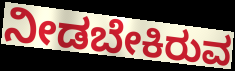
ನೀಡಬೇಕಿರುವ